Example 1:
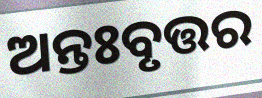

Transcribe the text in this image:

ଅନ୍ତଃବୃତ୍ତର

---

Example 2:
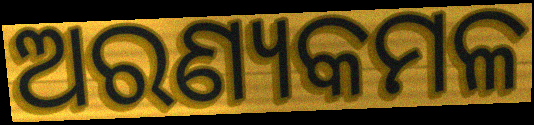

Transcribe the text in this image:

ଅରଣ୍ୟକମଳ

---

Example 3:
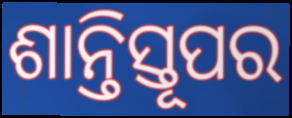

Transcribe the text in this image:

ଶାନ୍ତିସ୍ତୂପର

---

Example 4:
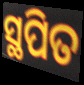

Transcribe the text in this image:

ସ୍ଥପିତ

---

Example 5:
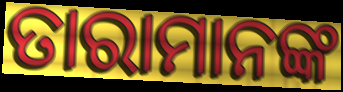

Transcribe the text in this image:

ତାରାମାନଙ୍କ